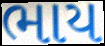
ભાય